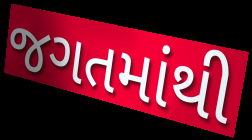
જગતમાંથી